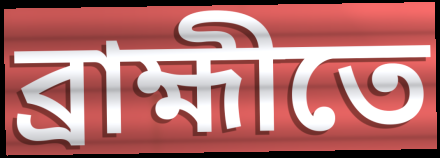
ব্রাহ্মীতে